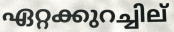
ഏറ്റക്കുറച്ചില്